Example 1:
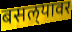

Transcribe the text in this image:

बसल्यावर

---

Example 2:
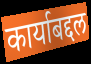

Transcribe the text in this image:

कार्याबद्दल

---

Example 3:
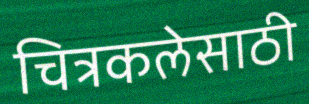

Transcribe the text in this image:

चित्रकलेसाठी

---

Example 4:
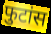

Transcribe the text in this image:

फुटांस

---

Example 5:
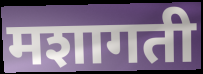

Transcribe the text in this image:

मशागती